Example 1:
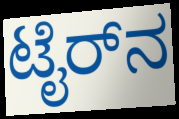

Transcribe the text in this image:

ಟೈರ್‌ನ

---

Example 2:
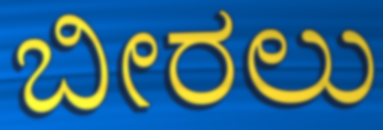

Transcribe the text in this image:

ಬೀರಲು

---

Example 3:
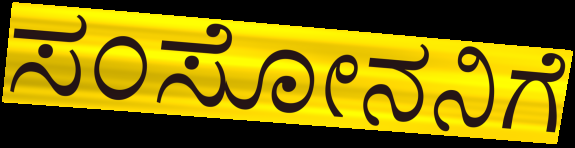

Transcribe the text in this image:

ಸಂಸೋನನಿಗೆ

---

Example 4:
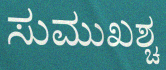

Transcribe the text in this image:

ಸುಮುಖಶ್ಚ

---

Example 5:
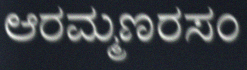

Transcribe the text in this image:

ಆರಮ್ಮಣರಸಂ